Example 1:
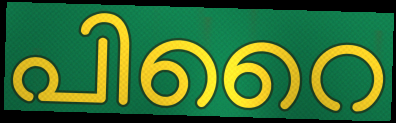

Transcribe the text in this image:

പിറൈ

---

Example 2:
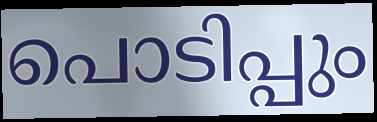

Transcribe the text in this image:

പൊടിപ്പും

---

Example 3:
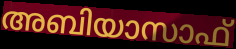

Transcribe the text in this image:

അബിയാസാഫ്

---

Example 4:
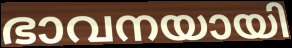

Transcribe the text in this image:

ഭാവനയായി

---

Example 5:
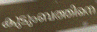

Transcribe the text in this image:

കുടുംബത്തിനെ